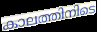
കാലത്തിനിടെ